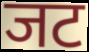
जट